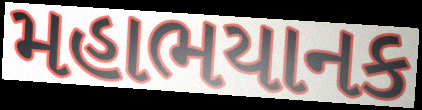
મહાભયાનક